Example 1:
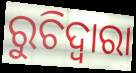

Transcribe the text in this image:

ରୁଚିଦ୍ୱାରା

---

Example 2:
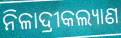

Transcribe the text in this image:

ନିଳାଦ୍ରୀକଲ୍ୟାଣ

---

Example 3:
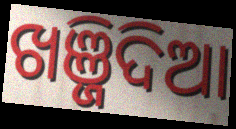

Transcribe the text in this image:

ଖଞ୍ଜିଦିଆ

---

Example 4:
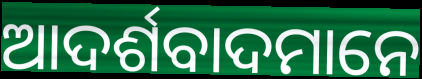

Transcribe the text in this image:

ଆଦର୍ଶବାଦମାନେ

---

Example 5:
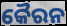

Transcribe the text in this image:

କୈରନ